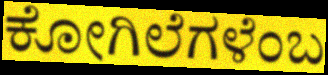
ಕೋಗಿಲೆಗಳೆಂಬ